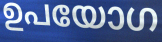
ഉപയോഗ